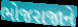
ભોજરાજાને